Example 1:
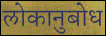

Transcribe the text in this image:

लोकानुबोध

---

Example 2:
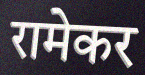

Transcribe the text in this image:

रामेकर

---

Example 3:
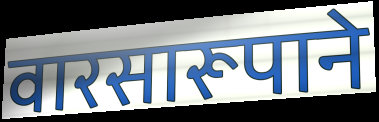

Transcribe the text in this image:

वारसारूपाने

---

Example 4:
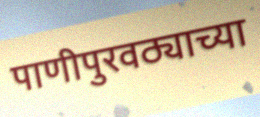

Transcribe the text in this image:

पाणीपुरवठ्याच्या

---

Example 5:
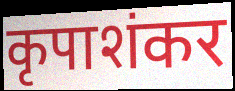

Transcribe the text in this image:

कृपाशंकर